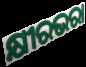
କ୍ଷୀରଭରା